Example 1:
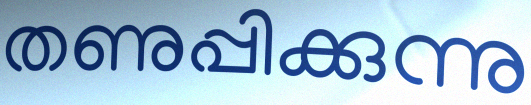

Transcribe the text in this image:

തണുപ്പിക്കുന്നു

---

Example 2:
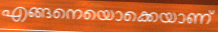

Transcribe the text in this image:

എങ്ങനെയൊക്കെയാണ്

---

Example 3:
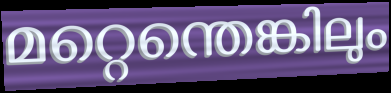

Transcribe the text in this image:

മറ്റെന്തെങ്കിലും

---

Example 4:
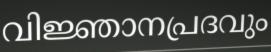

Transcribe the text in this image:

വിജ്ഞാനപ്രദവും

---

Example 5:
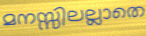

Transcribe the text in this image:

മനസ്സിലല്ലാതെ